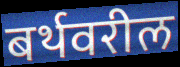
बर्थवरील